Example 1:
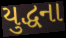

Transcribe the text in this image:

યુદ્ધના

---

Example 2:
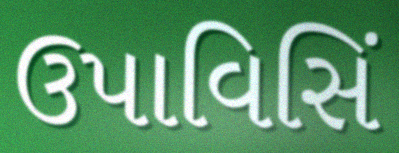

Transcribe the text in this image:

ઉપાવિસિં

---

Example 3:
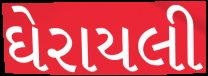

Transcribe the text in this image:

ઘેરાયલી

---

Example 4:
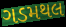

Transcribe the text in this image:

ગડમથલ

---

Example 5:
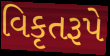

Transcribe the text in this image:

વિકૃતરૂપે